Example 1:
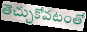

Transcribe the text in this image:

తెచ్చుకోవటంతో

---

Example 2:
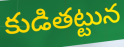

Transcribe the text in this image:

కుడితట్టున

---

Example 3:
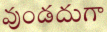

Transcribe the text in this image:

వుండదుగా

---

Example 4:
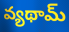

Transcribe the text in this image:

వ్యథామ్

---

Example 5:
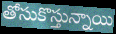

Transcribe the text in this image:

తోసుకొస్తున్నాయి